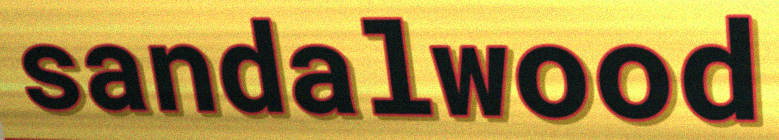
sandalwood